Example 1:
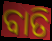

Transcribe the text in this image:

ବାତି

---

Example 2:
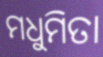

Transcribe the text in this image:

ମଧୁମିତା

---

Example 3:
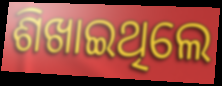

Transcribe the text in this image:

ଶିଖାଇଥିଲେ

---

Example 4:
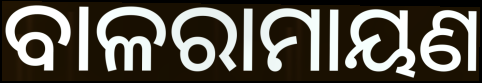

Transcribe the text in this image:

ବାଳରାମାୟଣ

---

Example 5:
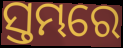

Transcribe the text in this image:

ସ୍ତମ୍ଭରେ